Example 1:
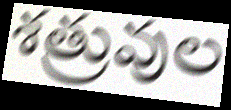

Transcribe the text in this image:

శత్రువుల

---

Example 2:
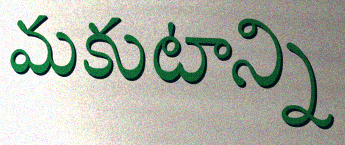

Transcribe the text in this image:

మకుటాన్ని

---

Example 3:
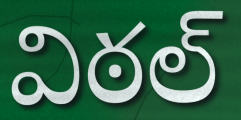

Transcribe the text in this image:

విఠల్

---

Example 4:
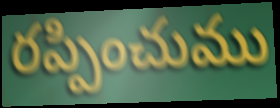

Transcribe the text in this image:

రప్పించుము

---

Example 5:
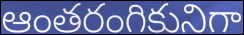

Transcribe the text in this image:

ఆంతరంగికునిగా